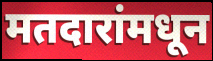
मतदारांमधून